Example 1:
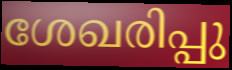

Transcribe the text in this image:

ശേഖരിപ്പു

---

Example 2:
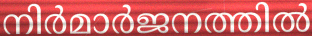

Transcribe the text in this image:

നിർമാർജനത്തിൽ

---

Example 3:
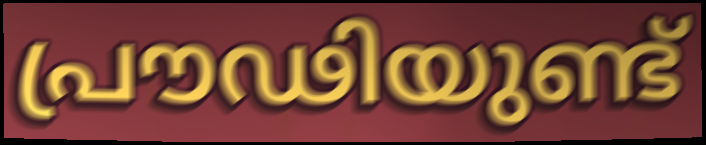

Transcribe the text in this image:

പ്രൗഢിയുണ്ട്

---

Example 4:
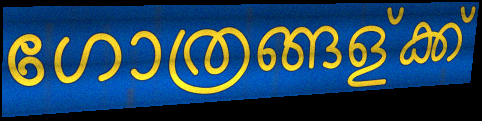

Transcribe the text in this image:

ഗോത്രങ്ങള്ക്ക്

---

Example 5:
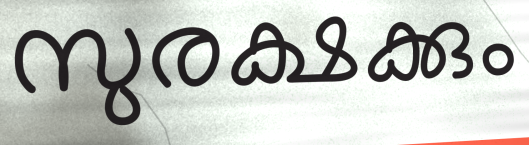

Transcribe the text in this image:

സുരക്ഷക്കും